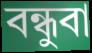
বন্ধুবা